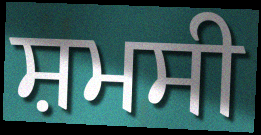
ਸ਼ਮਸੀ